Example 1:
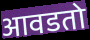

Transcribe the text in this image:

आवडतो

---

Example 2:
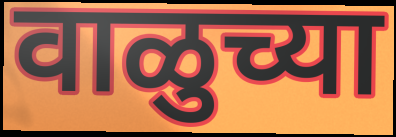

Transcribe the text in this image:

वाळुच्या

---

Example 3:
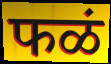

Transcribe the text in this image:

फळं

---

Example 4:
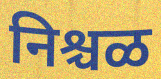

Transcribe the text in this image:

निश्चळ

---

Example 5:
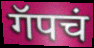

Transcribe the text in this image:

गॅपचं